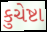
કુચેષ્ટા